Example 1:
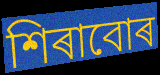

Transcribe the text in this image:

শিৰাবোৰ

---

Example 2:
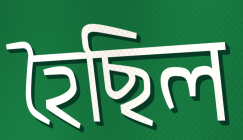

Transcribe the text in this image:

হৈছিল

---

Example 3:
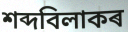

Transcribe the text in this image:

শব্দবিলাকৰ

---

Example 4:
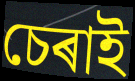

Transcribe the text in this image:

চেৰাই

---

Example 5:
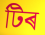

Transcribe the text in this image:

টিৰ